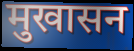
मुखासन